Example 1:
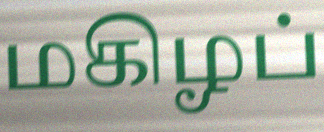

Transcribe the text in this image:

மகிழப்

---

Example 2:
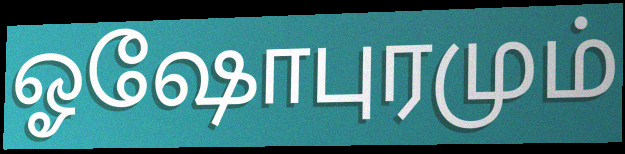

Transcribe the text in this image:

ஓஷோபுரமும்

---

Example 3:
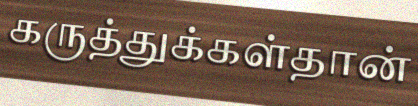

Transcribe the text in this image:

கருத்துக்கள்தான்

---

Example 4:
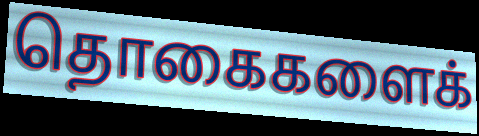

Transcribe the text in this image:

தொகைகளைக்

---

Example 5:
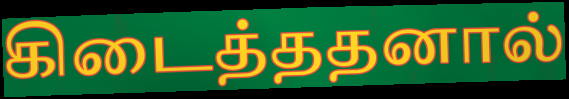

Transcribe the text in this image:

கிடைத்ததனால்